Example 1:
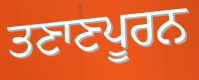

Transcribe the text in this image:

ਤਣਾਣਪੂਰਨ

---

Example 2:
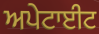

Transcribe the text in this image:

ਅਪੇਟਾਈਟ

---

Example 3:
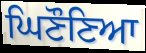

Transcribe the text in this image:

ਘਿਣੌਣਿਆ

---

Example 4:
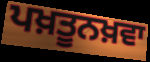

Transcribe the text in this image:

ਪਖ਼ਤੂਨਖ਼ਵਾ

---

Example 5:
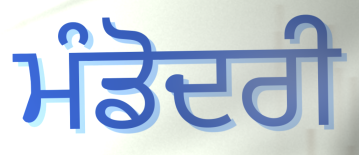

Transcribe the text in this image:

ਮੰਡੋਦਰੀ